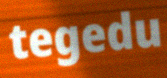
tegedu